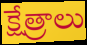
క్షేత్రాలు